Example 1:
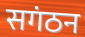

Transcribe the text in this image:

सगंठन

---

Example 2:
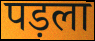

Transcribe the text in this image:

पड़ला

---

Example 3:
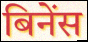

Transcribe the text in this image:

बिनेंस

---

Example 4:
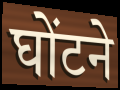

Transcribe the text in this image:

घोंटने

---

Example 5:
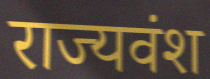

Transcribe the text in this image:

राज्यवंश